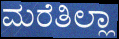
ಮರೆತಿಲ್ಲಾ